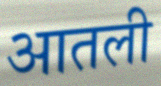
आतली